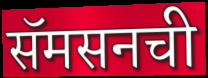
सॅमसनची